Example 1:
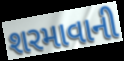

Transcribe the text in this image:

શરમાવાની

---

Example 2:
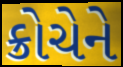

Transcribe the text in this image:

ક્રોચેને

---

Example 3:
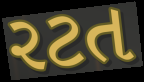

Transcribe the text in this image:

રટત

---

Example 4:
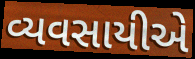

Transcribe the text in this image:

વ્યવસાયીએ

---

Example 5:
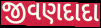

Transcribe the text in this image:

જીવણદાદા